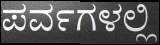
ಪರ್ವಗಳಲ್ಲಿ